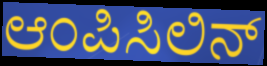
ಆಂಪಿಸಿಲಿನ್